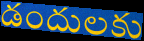
డందులకు